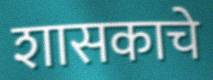
शासकाचे